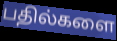
பதில்களை